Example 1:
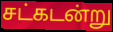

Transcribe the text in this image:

சட்கடன்று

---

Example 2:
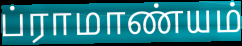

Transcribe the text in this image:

ப்ராமாண்யம்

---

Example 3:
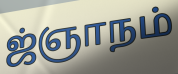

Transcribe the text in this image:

ஜ்ஞாநம்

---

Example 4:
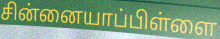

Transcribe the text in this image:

சின்னையாப்பிள்ளை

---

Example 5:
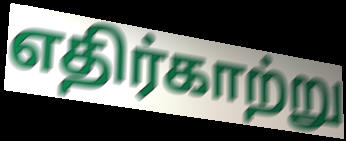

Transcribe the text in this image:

எதிர்காற்று